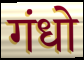
गंधो